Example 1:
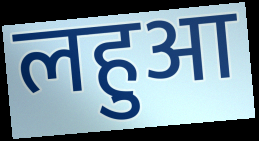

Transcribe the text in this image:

लहुआ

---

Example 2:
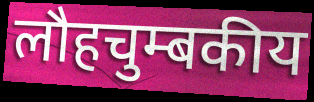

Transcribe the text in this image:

लौहचुम्बकीय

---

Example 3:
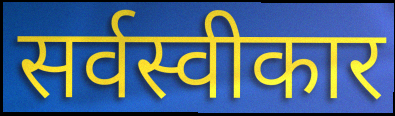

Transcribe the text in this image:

सर्वस्वीकार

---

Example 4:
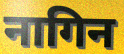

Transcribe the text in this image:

नागिन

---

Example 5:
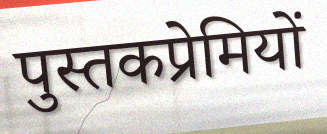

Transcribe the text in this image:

पुस्तकप्रेमियों